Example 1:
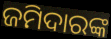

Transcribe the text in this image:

ଜମିଦାରଙ୍କ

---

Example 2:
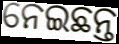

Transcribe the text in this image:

ନେଇଛନ୍ତ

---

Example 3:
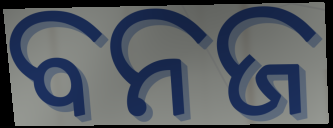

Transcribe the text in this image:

ବନଜ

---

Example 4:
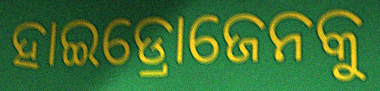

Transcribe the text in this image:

ହାଇଡ୍ରୋଜେନକୁ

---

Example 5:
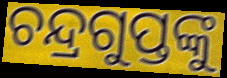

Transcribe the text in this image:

ଚନ୍ଦ୍ରଗୁପ୍ତଙ୍କୁ